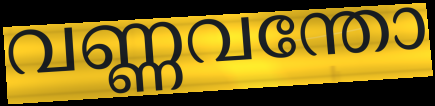
വണ്ണവന്തോ